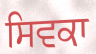
ਸਿਵਕਾ